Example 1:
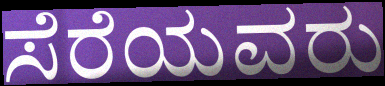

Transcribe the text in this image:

ಸೆರೆಯವರು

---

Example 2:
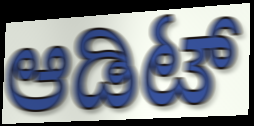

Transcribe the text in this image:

ಆಡಿಟ್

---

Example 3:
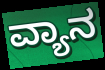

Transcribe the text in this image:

ವ್ಯಾನ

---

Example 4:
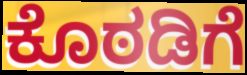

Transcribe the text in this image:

ಕೊಠಡಿಗೆ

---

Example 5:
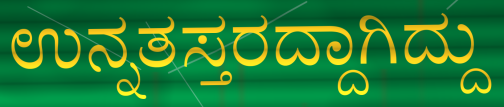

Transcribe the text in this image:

ಉನ್ನತಸ್ತರದ್ದಾಗಿದ್ದು